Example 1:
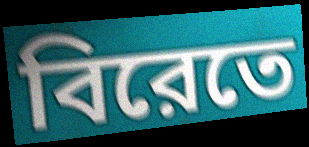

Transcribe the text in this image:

বিরেতে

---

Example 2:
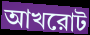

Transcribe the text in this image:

আখরোট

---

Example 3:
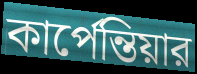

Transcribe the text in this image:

কার্পেন্তিয়ার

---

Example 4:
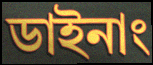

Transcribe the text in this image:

ডাইনাং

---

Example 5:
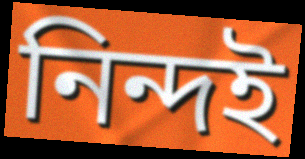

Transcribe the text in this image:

নিন্দই